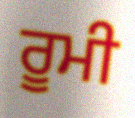
ਰੂਮੀ